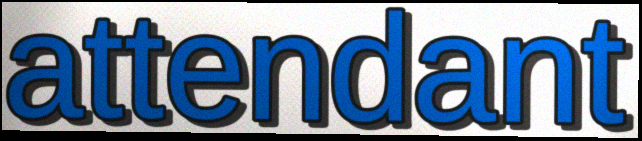
attendant